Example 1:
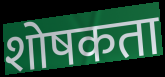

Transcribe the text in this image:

शोषकता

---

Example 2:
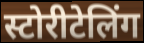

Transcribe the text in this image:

स्टोरीटेलिंग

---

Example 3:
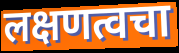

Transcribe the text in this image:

लक्षणत्वचा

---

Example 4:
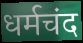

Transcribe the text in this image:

धर्मचंद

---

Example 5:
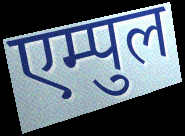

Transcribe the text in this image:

एम्पुल